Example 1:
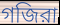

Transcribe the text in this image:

গজিরা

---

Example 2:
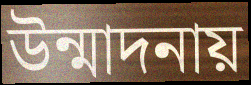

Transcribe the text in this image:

উন্মাদনায়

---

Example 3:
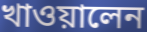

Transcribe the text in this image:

খাওয়ালেন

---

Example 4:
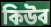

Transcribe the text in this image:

কিউব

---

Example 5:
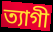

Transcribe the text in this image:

ত্যাগী